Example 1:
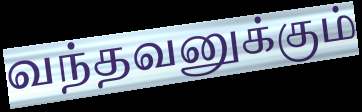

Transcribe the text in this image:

வந்தவனுக்கும்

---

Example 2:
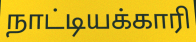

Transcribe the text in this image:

நாட்டியக்காரி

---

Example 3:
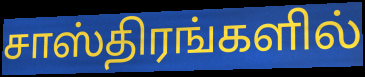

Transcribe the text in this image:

சாஸ்திரங்களில்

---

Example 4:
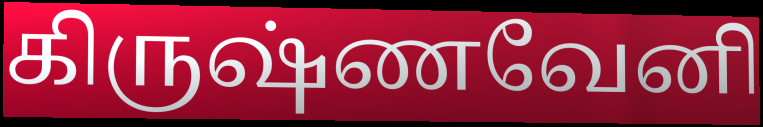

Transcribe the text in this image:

கிருஷ்ணவேனி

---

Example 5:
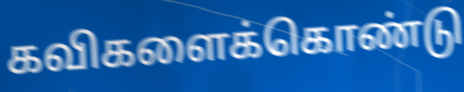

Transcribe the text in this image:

கவிகளைக்கொண்டு